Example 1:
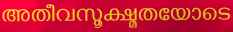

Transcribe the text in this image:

അതീവസൂക്ഷ്മതയോടെ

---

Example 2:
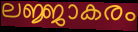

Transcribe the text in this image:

ലജ്ജാകരം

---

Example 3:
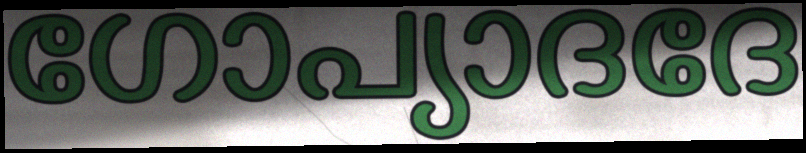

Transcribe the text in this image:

ഗോപ്യാദദേ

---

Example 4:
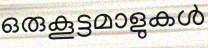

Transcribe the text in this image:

ഒരുകൂട്ടമാളുകൾ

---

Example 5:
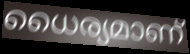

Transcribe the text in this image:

ധൈര്യമാണ്